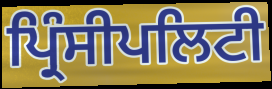
ਪ੍ਰਿੰਸੀਪਲਿਟੀ